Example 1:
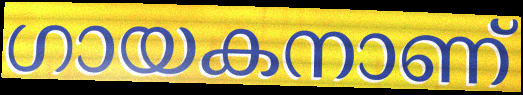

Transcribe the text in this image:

ഗായകനാണ്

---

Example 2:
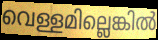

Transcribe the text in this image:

വെള്ളമില്ലെങ്കിൽ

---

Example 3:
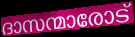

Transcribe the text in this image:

ദാസന്മാരോട്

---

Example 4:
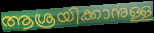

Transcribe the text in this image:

ആശ്രയിക്കാനുള്ള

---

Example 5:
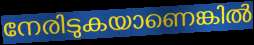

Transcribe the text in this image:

നേരിടുകയാണെങ്കിൽ